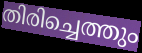
തിരിച്ചെത്തും